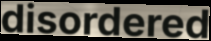
disordered